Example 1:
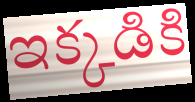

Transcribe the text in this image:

ఇక్కడికి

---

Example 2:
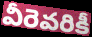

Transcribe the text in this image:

వీరెవరికీ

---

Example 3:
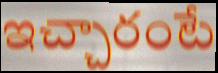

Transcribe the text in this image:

ఇచ్చారంటే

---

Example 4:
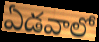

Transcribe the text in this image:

ఏడవాలో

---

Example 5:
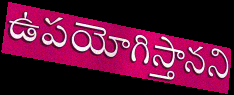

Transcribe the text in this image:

ఉపయోగిస్తానని